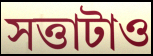
সত্তাটাও